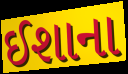
ઈશાના